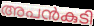
അപൻകുടി